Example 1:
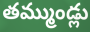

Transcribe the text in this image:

తమ్ముండ్లు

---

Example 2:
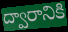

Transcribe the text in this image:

ద్వారానికి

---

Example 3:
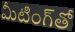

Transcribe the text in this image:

మీటింగ్‌తో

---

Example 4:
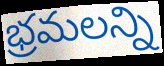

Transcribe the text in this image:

భ్రమలన్ని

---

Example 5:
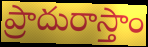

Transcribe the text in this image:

ప్రాదురాస్తాం